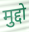
मुद्दो